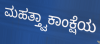
ಮಹತ್ತ್ವಾಕಾಂಕ್ಷೆಯ